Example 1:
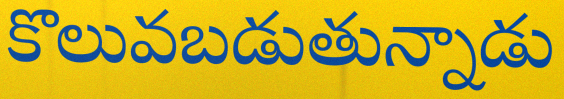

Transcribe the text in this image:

కొలువబడుతున్నాడు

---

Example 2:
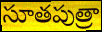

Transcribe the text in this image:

సూతపుత్రా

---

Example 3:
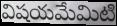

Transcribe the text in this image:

విషయమేమిటి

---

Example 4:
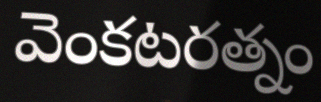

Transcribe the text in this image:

వెంకటరత్నం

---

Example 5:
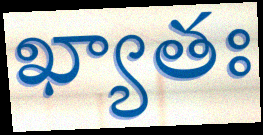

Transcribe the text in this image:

ఖ్యాతః